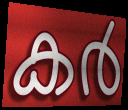
കർ